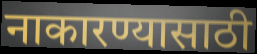
नाकारण्यासाठी